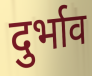
दुर्भाव